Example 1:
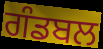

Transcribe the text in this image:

ਗੰਡਬਲ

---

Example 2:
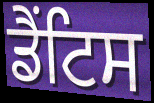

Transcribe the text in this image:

ਡੈਂਟਿਸ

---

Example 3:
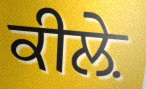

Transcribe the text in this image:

ਕੀਲ਼ੇ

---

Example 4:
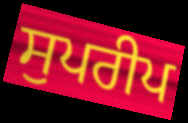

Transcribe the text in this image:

ਸੁਪਰੀਪ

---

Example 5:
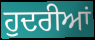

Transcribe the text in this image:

ਹੁਦਰੀਆਂ